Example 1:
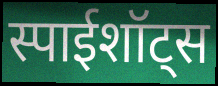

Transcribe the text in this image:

स्पाईशॉट्स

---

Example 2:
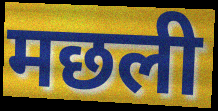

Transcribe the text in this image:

मछली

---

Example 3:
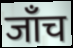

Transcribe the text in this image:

जाँच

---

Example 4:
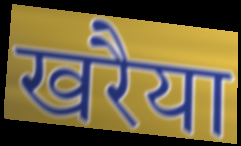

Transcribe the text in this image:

खरैया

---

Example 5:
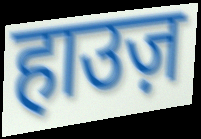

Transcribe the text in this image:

हाउज़